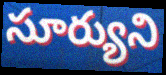
సూర్యుని